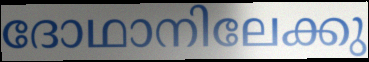
ദോഥാനിലേക്കു